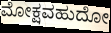
ಮೋಕ್ಷವಹುದೋ